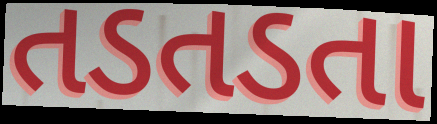
તડતડતા